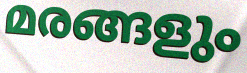
മരങ്ങളും